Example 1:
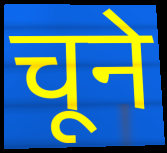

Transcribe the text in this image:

चूने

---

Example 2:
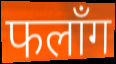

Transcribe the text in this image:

फलाँग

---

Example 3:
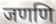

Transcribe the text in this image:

जणणि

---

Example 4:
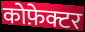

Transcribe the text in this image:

कोफ़ेक्टर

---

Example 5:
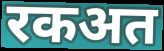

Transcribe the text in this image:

रकअत